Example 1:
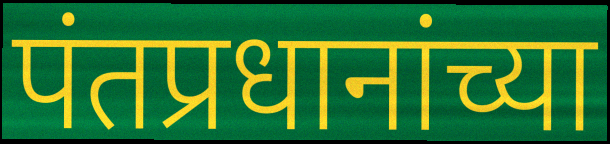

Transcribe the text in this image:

पंतप्रधानांच्या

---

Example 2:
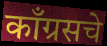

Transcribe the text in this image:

काँग्रसचे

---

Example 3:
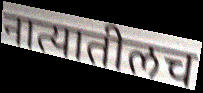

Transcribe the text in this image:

नात्यातीलच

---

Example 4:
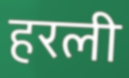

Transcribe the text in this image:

हरली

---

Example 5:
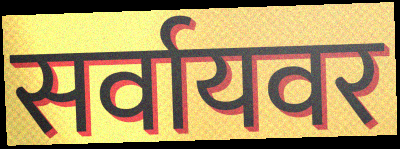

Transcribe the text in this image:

सर्वायवर